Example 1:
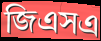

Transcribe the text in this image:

জিএসএ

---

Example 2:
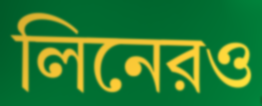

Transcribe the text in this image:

লিনেরও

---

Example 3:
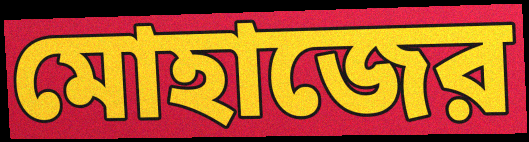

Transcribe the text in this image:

মোহাজের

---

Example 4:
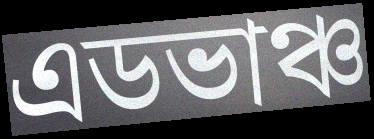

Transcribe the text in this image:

এডভাঞ্চ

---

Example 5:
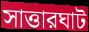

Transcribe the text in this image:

সাত্তারঘাট